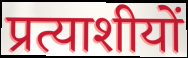
प्रत्याशीयों